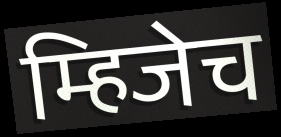
म्हिजेच